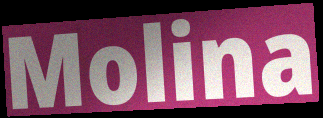
Molina